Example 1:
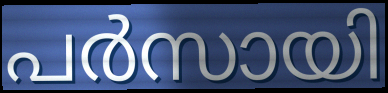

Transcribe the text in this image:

പർസായി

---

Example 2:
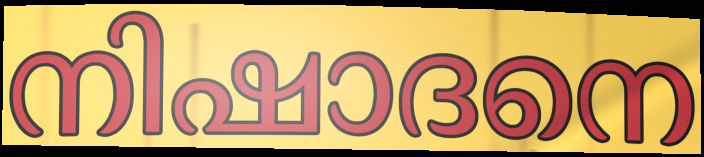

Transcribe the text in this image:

നിഷാദനെ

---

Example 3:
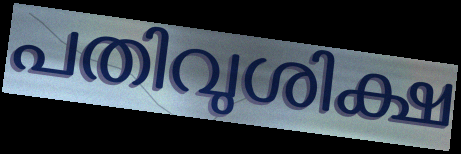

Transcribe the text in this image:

പതിവുശിക്ഷ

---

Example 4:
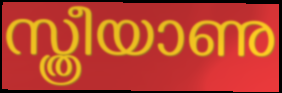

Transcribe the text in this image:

സ്ത്രീയാണു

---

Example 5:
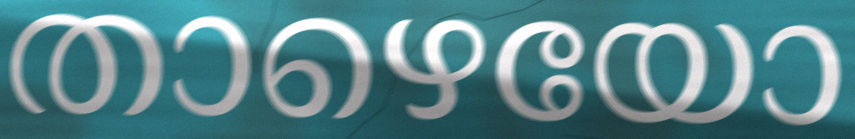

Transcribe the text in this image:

താഴെയോ